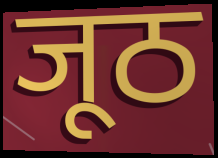
जूठ